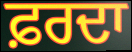
ਫ਼ਰਦਾ